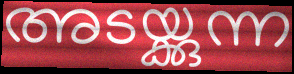
അടയ്ക്കുന്ന